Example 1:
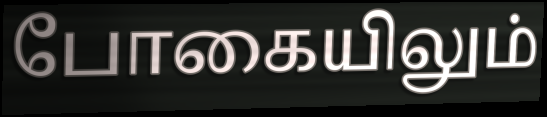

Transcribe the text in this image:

போகையிலும்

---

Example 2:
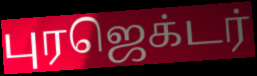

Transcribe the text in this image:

புரஜெக்டர்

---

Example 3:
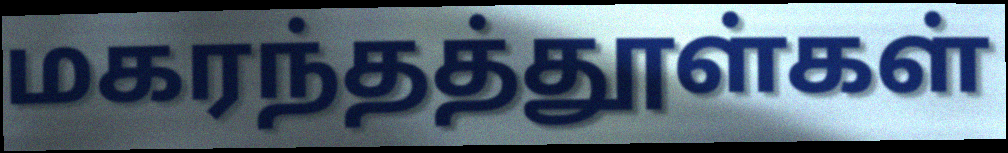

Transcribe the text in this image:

மகரந்தத்தூள்கள்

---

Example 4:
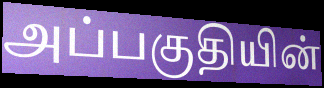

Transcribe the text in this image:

அப்பகுதியின்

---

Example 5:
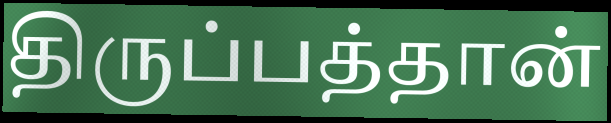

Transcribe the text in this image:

திருப்பத்தான்